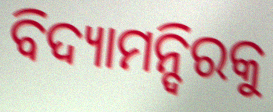
ବିଦ୍ୟାମନ୍ଦିରକୁ